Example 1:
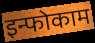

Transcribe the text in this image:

इन्फोकाम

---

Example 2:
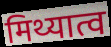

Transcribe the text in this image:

मिथ्यात्व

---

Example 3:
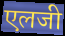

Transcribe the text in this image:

एलजी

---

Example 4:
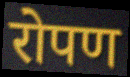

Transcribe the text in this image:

रोपण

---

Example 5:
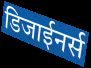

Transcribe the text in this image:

डिजाईनर्स